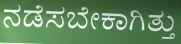
ನಡೆಸಬೇಕಾಗಿತ್ತು